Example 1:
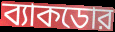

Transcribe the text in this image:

ব্যাকডোর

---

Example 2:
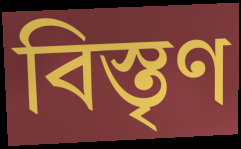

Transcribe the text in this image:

বিস্তৃণ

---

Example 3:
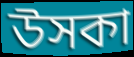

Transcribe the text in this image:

উসকা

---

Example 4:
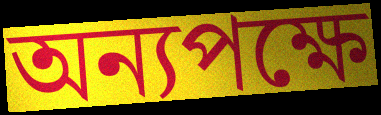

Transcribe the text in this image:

অন্যপক্ষে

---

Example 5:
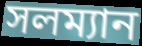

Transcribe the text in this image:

সলম্যান